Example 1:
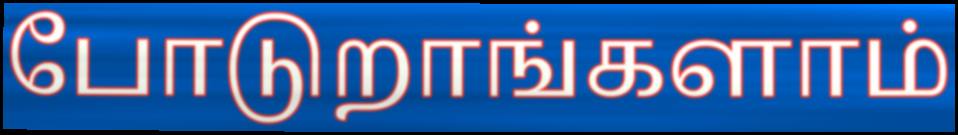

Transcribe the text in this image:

போடுறாங்களாம்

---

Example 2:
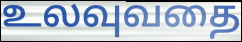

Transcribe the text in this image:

உலவுவதை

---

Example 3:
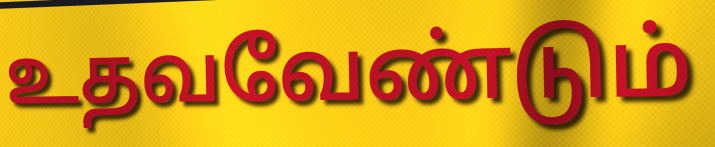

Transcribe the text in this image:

உதவவேண்டும்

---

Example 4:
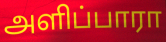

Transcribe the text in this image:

அளிப்பாரா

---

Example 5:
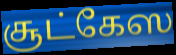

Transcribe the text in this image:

சூட்கேஸ